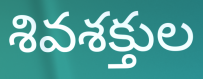
శివశక్తుల